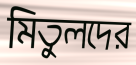
মিতুলদের